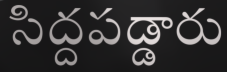
సిద్దపడ్డారు